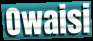
Owaisi